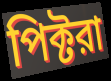
পিক্টরা